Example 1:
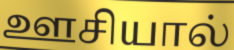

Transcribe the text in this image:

ஊசியால்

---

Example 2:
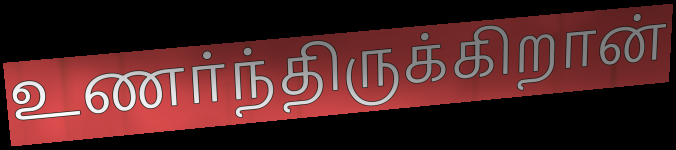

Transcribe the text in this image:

உணர்ந்திருக்கிறான்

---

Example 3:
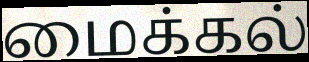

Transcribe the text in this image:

மைக்கல்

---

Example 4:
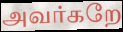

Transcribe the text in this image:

அவர்கறே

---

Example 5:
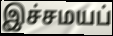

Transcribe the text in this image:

இச்சமயப்